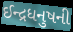
ઈન્દ્રધનુષની